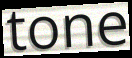
tone